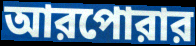
আরপোরার